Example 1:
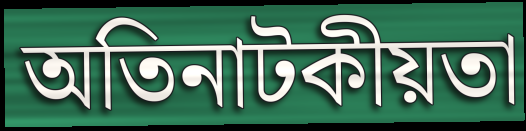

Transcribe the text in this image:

অতিনাটকীয়তা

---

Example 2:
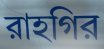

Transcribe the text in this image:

রাহগির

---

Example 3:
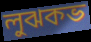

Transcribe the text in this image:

লুঝকভ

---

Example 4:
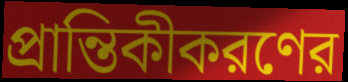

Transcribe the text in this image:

প্রান্তিকীকরণের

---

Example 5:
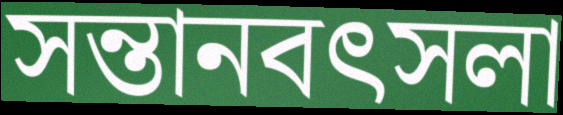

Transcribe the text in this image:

সন্তানবৎসলা